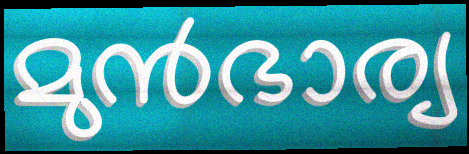
മുൻഭാര്യ